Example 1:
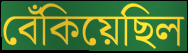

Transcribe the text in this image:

বেঁকিয়েছিল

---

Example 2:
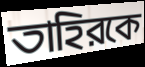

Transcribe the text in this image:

তাহিরকে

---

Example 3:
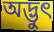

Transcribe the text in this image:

অদ্ভুৎ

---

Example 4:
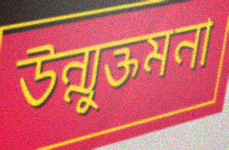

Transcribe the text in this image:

উন্মুক্তমনা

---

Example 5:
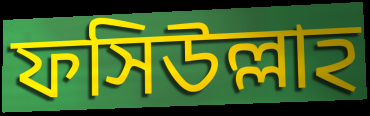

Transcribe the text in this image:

ফসিউল্লাহ